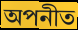
অপনীত